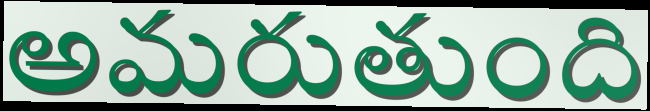
అమరుతుంది